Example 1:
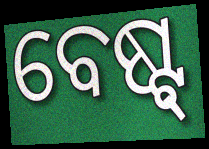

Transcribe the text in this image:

ବେଷ୍ଟ୍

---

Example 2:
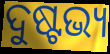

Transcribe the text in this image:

ଦୁଷ୍ଟଭ୍ୟ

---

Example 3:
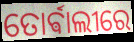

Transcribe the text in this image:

ତୋର୍ଵାଲୀରେ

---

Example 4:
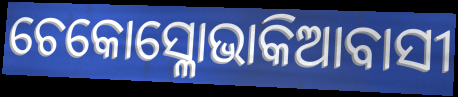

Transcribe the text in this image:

ଚେକୋସ୍ଳୋଭାକିଆବାସୀ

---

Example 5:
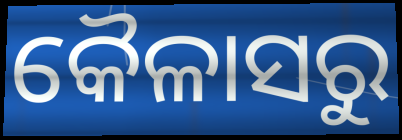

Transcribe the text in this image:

କୈଳାସରୁ